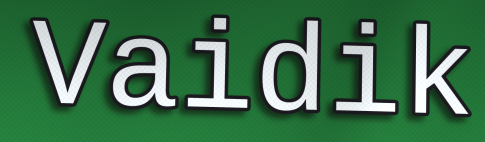
Vaidik